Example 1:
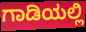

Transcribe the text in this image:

ಗಾಡಿಯಲ್ಲಿ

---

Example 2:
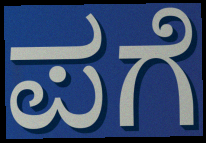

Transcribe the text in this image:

ಪಗೆ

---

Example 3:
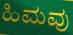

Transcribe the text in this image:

ಹಿಮವು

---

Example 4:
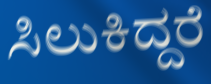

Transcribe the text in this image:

ಸಿಲುಕಿದ್ದರೆ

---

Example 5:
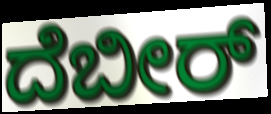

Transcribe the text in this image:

ದೆಬೀರ್